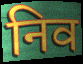
निव